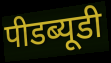
पीडब्यूडी